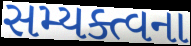
સમ્યક્ત્વના